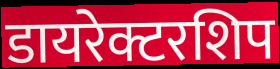
डायरेक्टरशिप